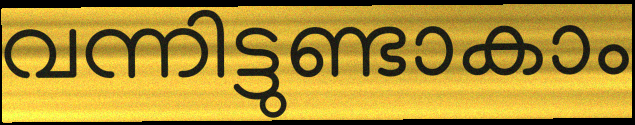
വന്നിട്ടുണ്ടാകാം